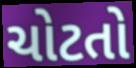
ચોટતો